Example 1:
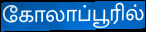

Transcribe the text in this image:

கோலாப்பூரில்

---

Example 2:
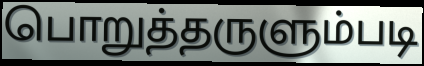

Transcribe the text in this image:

பொறுத்தருளும்படி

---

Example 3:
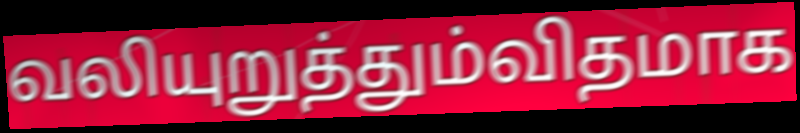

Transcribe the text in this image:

வலியுறுத்தும்விதமாக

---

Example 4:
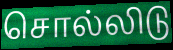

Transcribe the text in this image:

சொல்லிடு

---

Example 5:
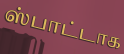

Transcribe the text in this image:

ஸ்பாட்டாக